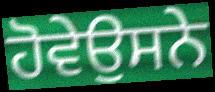
ਹੋਵੇਉਸਨੇ